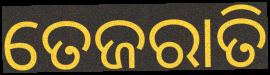
ତେଜରାତି